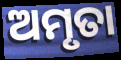
ଅମୃତା